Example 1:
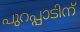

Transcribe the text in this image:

പുറപ്പാടിന്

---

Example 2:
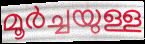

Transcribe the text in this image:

മൂർച്ചയുള്ള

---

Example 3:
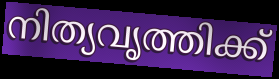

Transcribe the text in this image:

നിത്യവൃത്തിക്ക്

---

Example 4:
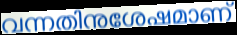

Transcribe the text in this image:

വന്നതിനുശേഷമാണ്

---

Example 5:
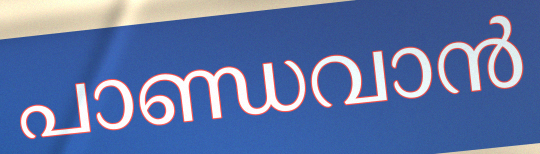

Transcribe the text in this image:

പാണ്ഡവാൻ